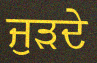
ਜੁੜਦੇ